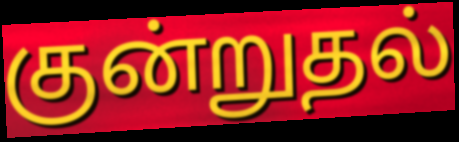
குன்றுதல்